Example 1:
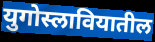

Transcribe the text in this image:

युगोस्लावियातील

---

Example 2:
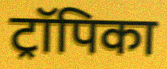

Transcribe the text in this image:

ट्रॉपिका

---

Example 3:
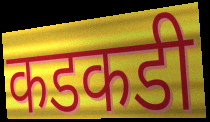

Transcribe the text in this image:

कडकडी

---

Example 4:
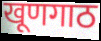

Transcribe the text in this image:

खूणगाठ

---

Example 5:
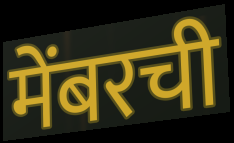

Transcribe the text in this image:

मेंबरची